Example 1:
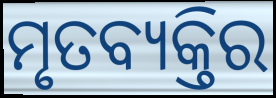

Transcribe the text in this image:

ମୃତବ୍ୟକ୍ତିର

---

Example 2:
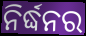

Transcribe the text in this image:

ନିର୍ଦ୍ଧନର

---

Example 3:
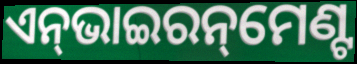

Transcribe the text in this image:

ଏନ୍‌ଭାଇରନ୍‌ମେଣ୍ଟ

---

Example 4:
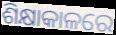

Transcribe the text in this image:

ଶିକ୍ଷାକାଳରେ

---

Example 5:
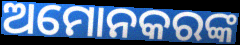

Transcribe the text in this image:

ଅମୋନକରଙ୍କ